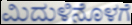
ಮಿದುಳಿನೊಳಗೆ